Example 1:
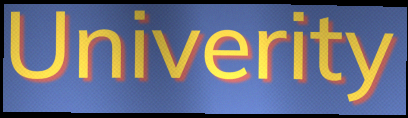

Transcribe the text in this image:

Univerity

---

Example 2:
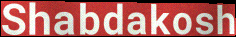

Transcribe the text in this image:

Shabdakosh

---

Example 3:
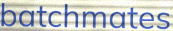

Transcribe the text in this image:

batchmates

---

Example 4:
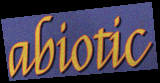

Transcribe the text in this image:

abiotic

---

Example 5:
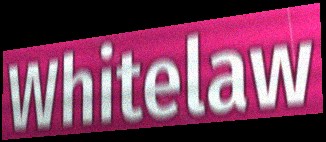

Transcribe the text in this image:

Whitelaw